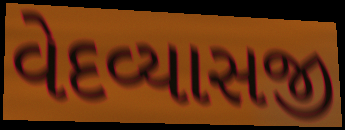
વેદવ્યાસજી